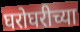
घरोघरीच्या